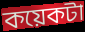
কয়েকটা